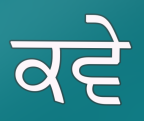
ਕਵੇ